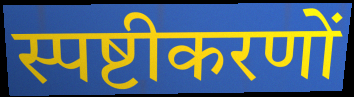
स्पष्टीकरणों